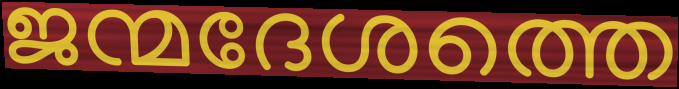
ജന്മദേശത്തെ